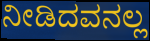
ನೀಡಿದವನಲ್ಲ